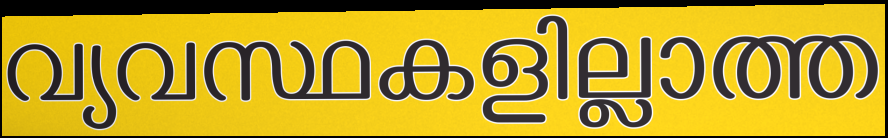
വ്യവസ്ഥകളില്ലാത്ത